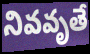
నివవృతే